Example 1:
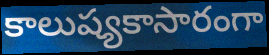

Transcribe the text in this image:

కాలుష్యకాసారంగా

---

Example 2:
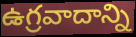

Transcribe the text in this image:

ఉగ్రవాదాన్ని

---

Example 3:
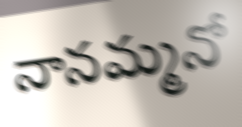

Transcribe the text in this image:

నానమ్మనో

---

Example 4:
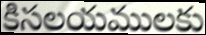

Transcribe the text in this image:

కిసలయములకు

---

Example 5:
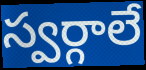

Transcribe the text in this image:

స్వర్గాలే